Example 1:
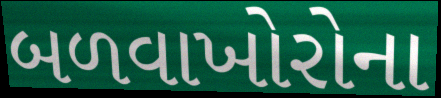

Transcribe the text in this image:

બળવાખોરોના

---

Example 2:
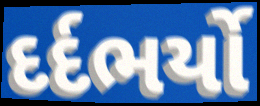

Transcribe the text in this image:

દર્દભર્યો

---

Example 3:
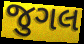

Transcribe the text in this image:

જુગલ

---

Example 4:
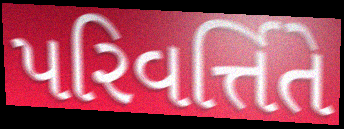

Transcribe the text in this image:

પરિવર્ત્તિતે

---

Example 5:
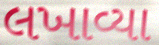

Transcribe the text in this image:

લખાવ્યા